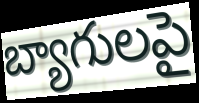
బ్యాగులపై